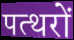
पत्थरों